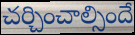
చర్చించాల్సిందే